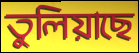
তুলিয়াছে